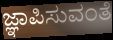
ಜ್ಞಾಪಿಸುವಂತೆ